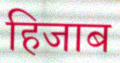
हिजाब